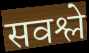
सवश्ले